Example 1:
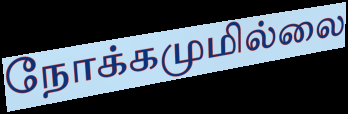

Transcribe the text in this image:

நோக்கமுமில்லை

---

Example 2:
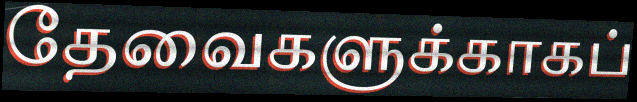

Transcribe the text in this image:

தேவைகளுக்காகப்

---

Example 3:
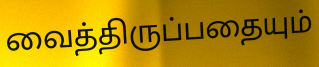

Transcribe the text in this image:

வைத்திருப்பதையும்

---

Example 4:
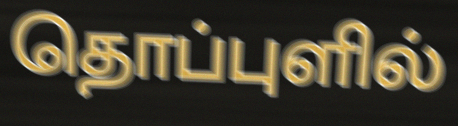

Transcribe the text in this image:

தொப்புளில்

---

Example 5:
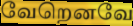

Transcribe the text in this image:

வேறெனவே